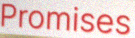
Promises